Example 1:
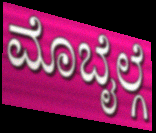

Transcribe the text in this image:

ಮೊಬೈಲ್ಗೆ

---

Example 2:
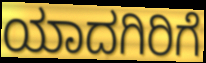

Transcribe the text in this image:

ಯಾದಗಿರಿಗೆ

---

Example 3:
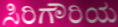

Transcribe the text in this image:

ಸಿರಿಗೌರಿಯ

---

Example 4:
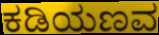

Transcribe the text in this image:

ಕಡಿಯಣವ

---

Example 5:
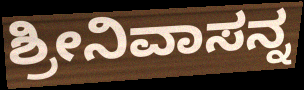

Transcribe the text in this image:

ಶ್ರೀನಿವಾಸನ್ನ